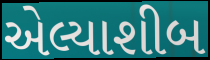
એલ્યાશીબ